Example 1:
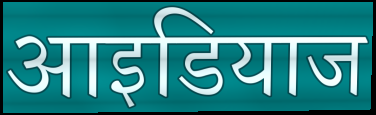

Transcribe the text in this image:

आइडियाज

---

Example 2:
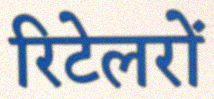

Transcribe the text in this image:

रिटेलरों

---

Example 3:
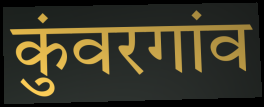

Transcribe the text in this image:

कुंवरगांव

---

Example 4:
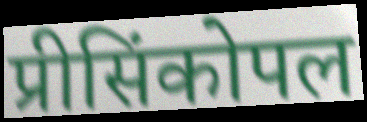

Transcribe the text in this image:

प्रीसिंकोपल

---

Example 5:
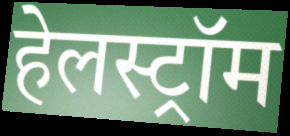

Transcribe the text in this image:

हेलस्ट्रॉम